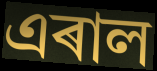
এৰাল